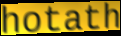
hotath